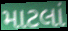
માટલાં